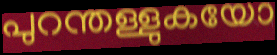
പുറന്തള്ളുകയോ